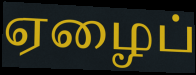
ஏழைப்